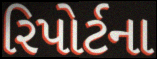
રિપોર્ટના